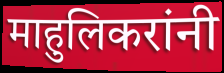
माहुलिकरांनी